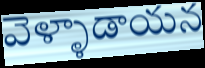
వెళ్ళాడాయన